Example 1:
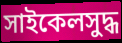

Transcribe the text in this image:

সাইকেলসুদ্ধ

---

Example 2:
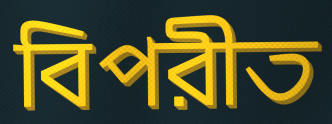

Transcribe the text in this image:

বিপরীত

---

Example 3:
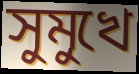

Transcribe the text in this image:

সুমুখে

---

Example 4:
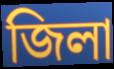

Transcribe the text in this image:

জিলা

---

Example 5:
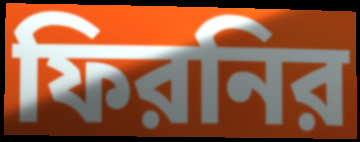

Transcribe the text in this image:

ফিরনির